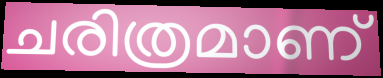
ചരിത്രമാണ്